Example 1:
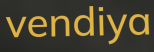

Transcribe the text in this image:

vendiya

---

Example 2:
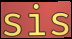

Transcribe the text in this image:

sis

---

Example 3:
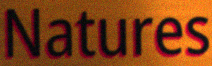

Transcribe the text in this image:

Natures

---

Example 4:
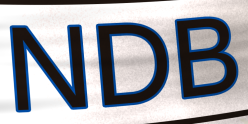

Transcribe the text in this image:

NDB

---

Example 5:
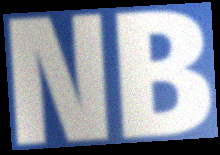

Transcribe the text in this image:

NB